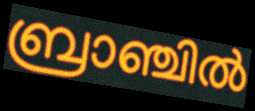
ബ്രാഞ്ചിൽ